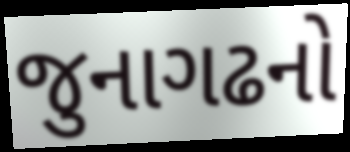
જુનાગઢનો